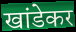
खांडेकर